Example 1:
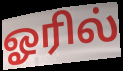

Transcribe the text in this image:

ஓரில்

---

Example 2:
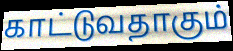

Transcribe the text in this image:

காட்டுவதாகும்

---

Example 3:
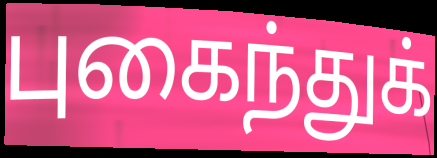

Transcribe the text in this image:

புகைந்துக்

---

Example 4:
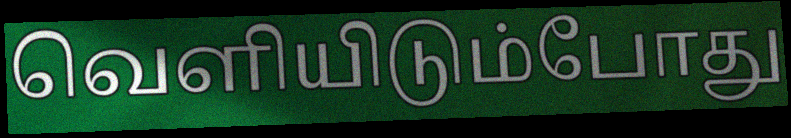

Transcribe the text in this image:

வெளியிடும்போது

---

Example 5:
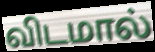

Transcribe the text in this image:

விடமால்